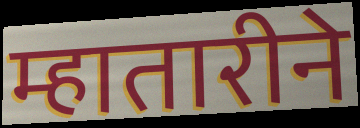
म्हातारीने